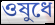
ওষুধে